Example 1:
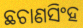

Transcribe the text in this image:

ଛଚାଣସିଂହ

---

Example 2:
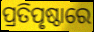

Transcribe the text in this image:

ପ୍ରତିପୃଷ୍ଠାରେ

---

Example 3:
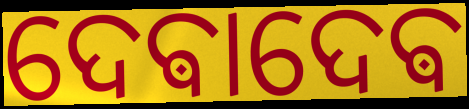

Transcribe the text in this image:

ଦେଵାଦେଵ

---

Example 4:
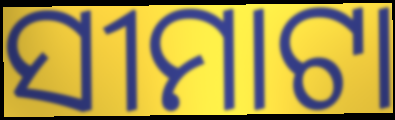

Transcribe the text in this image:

ସୀମାଟା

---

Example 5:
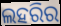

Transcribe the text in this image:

ଲହରିର